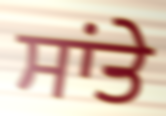
ਸਾਂਤੇ